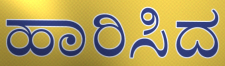
ಹಾರಿಸಿದ